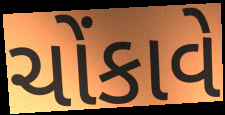
ચોંકાવે